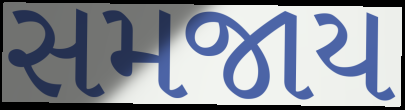
સમજાય